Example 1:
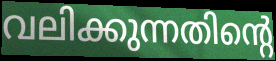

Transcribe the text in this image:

വലിക്കുന്നതിന്റെ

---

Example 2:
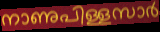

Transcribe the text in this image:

നാണുപിള്ളസാർ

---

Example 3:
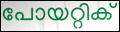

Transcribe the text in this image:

പോയറ്റിക്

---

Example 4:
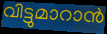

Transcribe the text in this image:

വിട്ടുമാറാൻ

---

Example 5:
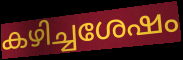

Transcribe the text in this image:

കഴിച്ചശേഷം